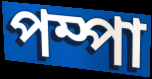
পম্পা